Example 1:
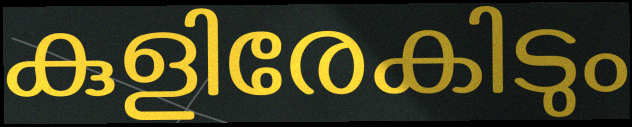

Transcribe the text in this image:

കുളിരേകിടും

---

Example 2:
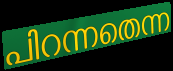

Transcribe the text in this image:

പിറന്നതെന്ന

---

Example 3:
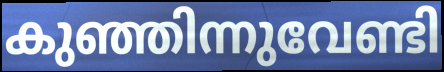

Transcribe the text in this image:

കുഞ്ഞിന്നുവേണ്ടി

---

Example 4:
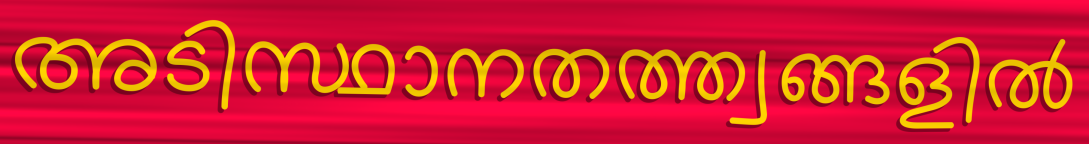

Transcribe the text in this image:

അടിസ്ഥാനതത്ത്വങ്ങളിൽ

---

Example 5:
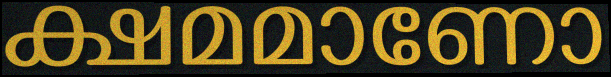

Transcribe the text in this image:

ക്ഷമമാണോ